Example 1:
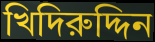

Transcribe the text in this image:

খিদিরুদ্দিন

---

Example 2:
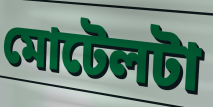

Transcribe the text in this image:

মোটেলটা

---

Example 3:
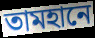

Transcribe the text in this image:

তামহানে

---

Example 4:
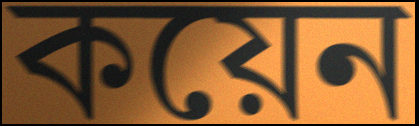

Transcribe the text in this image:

কয়েন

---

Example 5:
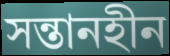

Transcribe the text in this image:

সন্তানহীন